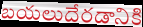
బయలుదేరడానికి